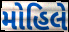
મોહિલે